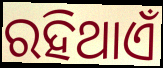
ରହିଥାଏଁ